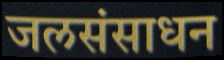
जलसंसाधन